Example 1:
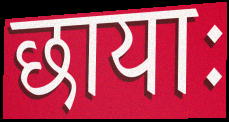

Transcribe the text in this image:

छायाः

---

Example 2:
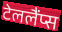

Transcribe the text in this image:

टेललैंप्स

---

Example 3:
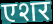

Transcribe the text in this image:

एशर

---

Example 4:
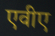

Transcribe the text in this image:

एवीए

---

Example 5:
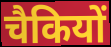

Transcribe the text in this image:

चैकियों